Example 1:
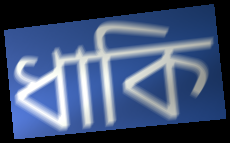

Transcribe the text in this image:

ধাকি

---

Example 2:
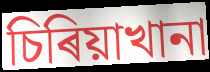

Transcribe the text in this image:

চিৰিয়াখানা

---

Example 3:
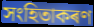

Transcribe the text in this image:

সংহিতাকৰণ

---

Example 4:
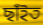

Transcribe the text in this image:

ছাঁইত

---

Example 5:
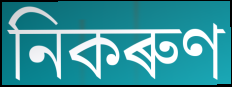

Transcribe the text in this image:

নিকৰুণ